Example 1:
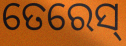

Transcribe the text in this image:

ତେରେସ୍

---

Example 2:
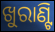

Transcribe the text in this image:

ଖୁରାଣ୍ଟି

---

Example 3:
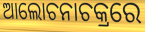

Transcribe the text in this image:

ଆଲୋଚନାଚକ୍ରରେ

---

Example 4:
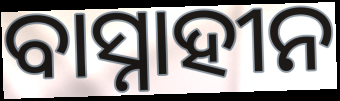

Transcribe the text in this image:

ବାସ୍ନାହୀନ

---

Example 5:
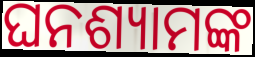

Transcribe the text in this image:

ଘନଶ୍ୟାମଙ୍କ